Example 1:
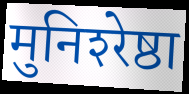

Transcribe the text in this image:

मुनिश्रेष्ठा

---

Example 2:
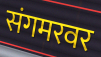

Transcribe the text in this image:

संगमरवर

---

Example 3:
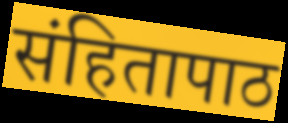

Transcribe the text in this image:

संहितापाठ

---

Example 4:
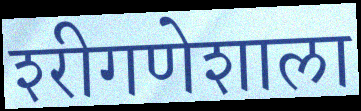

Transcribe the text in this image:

श्रीगणेशाला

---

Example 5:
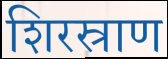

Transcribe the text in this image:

शिरस्राण